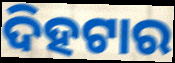
ଦିହଟାର